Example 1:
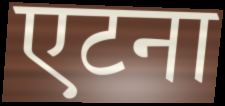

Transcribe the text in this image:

एटना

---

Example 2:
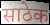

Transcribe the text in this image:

साठेक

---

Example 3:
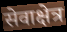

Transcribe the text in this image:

सेवाक्षेत्र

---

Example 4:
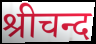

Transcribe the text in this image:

श्रीचन्द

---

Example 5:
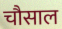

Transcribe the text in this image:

चौसाल